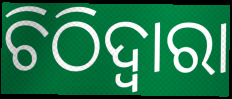
ଚିଠିଦ୍ୱାରା